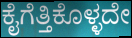
ಕೈಗೆತ್ತಿಕೊಳ್ಳದೇ